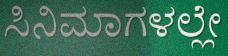
ಸಿನಿಮಾಗಳಲ್ಲೇ